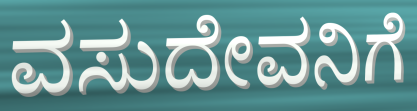
ವಸುದೇವನಿಗೆ